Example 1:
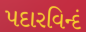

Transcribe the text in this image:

પદારવિન્દં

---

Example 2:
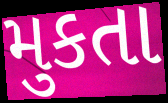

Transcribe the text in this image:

મુકતા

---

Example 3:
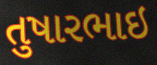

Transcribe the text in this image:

તુષારભાઇ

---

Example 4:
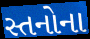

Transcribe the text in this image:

સ્તનોના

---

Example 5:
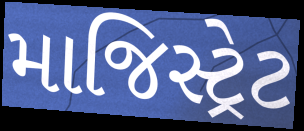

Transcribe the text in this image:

માજિસ્ટ્રેટ